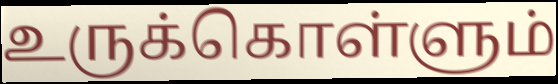
உருக்கொள்ளும்